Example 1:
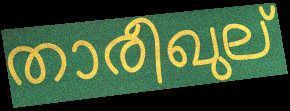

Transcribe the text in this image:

താരീഖുല്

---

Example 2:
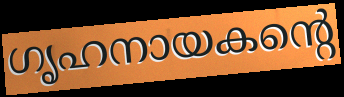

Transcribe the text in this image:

ഗൃഹനായകന്റെ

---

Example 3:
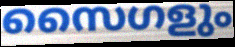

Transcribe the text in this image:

സൈഗളും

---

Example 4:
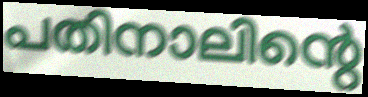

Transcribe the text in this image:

പതിനാലിന്റെ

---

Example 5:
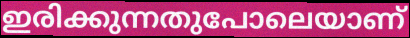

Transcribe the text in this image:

ഇരിക്കുന്നതുപോലെയാണ്